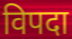
विपदा